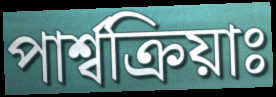
পাৰ্শ্বক্ৰিয়াঃ